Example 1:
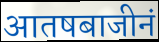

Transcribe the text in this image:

आतषबाजीनं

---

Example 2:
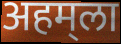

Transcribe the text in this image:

अहम्‌ला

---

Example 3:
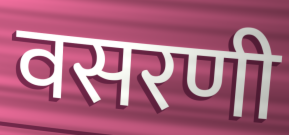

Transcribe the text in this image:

वसरणी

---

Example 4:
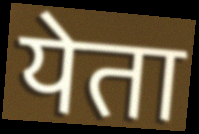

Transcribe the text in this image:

येता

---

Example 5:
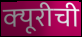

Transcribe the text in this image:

क्यूरीची